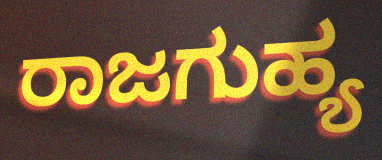
ರಾಜಗುಹ್ಯ